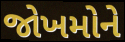
જોખમોને